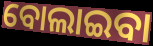
ବୋଲାଇବା